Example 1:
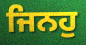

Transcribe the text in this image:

ਜਿਨਹੁ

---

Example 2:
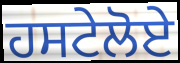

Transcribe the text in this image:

ਹਸਟੇਲੋਏ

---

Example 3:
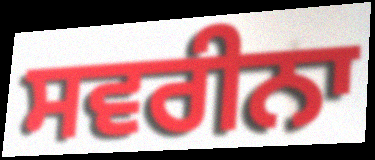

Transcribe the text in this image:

ਸਵਰੀਨਾ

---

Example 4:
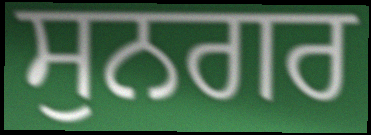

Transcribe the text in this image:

ਸੁਨਗਰ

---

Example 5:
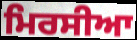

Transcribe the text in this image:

ਮਿਰਸੀਆ